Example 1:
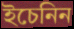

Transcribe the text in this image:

ইচেনিন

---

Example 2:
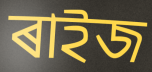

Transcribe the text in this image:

ৰাইজ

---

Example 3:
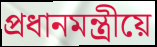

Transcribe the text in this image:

প্ৰধানমন্ত্ৰীয়ে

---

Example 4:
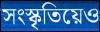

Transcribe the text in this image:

সংস্কৃতিয়েও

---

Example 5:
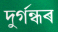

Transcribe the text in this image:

দুৰ্গন্ধৰ